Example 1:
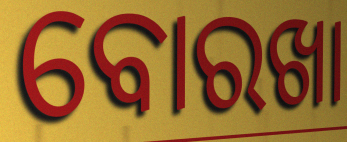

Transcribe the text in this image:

ବୋରଖା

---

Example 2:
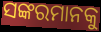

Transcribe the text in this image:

ସଙ୍କରମାନକୁ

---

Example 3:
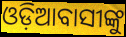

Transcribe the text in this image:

ଓଡ଼ିଆବାସୀଙ୍କୁ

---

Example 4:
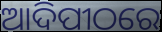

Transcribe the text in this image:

ଆଦିପୀଠରେ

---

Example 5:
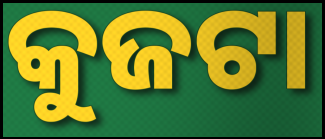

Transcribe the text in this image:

କୁଜଟା